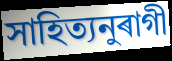
সাহিত্য়নুৰাগী